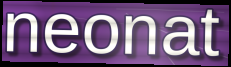
neonat